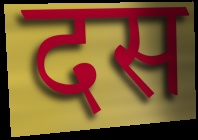
दस